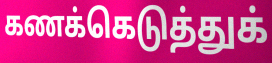
கணக்கெடுத்துக்